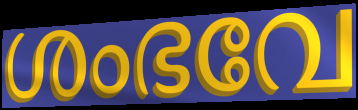
ശംഭവേ